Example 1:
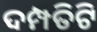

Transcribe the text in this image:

ଦମ୍ପତିଟି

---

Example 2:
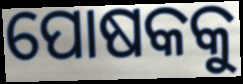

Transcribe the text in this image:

ପୋଷକକୁ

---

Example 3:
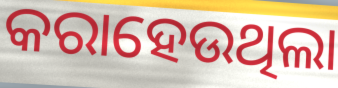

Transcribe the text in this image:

କରାହେଉଥିଲା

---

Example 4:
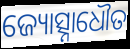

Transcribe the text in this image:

ଜ୍ୟୋତ୍ସ୍ନାଧୌତ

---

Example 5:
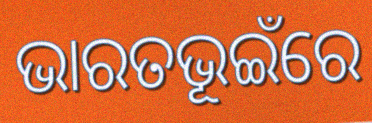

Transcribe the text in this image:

ଭାରତଭୂଇଁରେ